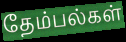
தேம்பல்கள்